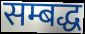
सम्बद्ध